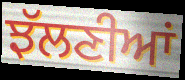
ਝੱਲਣੀਆਂ